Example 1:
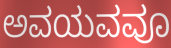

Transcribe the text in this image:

ಅವಯವವೂ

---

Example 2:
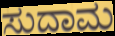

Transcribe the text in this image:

ಸುದಾಮ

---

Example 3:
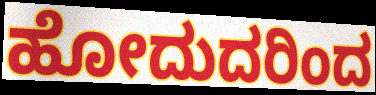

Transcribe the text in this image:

ಹೋದುದರಿಂದ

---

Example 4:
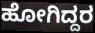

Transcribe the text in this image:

ಹೋಗಿದ್ದರ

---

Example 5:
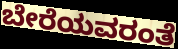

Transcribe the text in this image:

ಬೇರೆಯವರಂತೆ